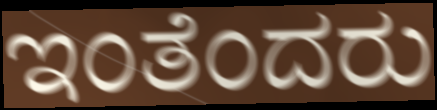
ಇಂತೆಂದರು